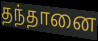
தந்தானை